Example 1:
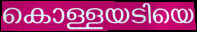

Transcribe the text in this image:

കൊള്ളയടിയെ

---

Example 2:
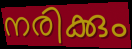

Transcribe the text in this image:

നരിക്കും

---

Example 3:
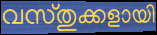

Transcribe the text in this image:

വസ്തുക്കളായി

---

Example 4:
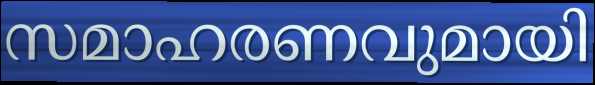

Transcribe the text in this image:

സമാഹരണവുമായി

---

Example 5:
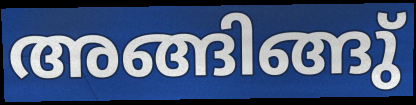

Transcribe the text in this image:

അങ്ങിങ്ങു്